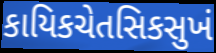
કાયિકચેતસિકસુખં